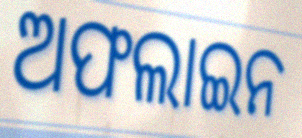
ଅଫଲାଇନ